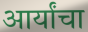
आर्यांचा